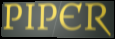
PIPER